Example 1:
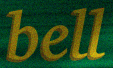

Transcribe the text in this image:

bell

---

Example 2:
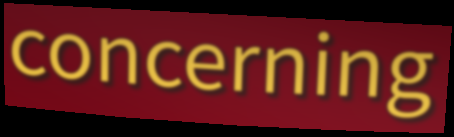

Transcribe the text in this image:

concerning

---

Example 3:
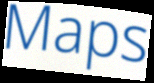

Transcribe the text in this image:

Maps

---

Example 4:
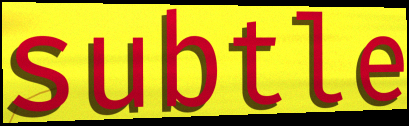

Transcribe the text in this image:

subtle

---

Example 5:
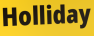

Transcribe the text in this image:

Holliday